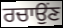
ਰਚਾਉਂਣ